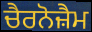
ਚੈਰਨੋਜ਼ੈਮ